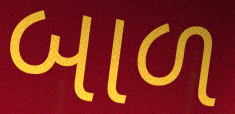
બાળ